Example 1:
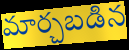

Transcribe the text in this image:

మార్చబడిన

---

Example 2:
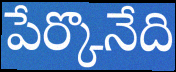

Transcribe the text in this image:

పేర్కొనేది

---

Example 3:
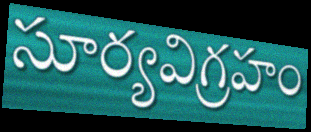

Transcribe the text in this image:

సూర్యవిగ్రహం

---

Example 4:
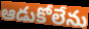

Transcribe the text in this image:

ఆడుకోలేను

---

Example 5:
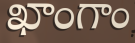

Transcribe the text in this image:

ఖాంగాం